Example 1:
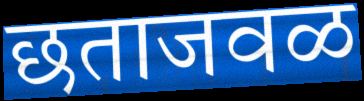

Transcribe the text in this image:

छताजवळ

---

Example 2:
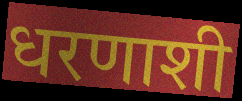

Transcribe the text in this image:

धरणाशी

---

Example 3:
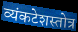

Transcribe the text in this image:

व्यंकटेशस्तोत्र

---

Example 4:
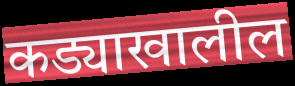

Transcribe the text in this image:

कड्याखालील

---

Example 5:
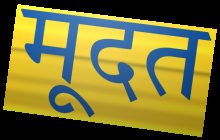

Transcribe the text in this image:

मूदत